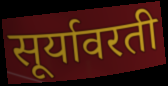
सूर्यावरती